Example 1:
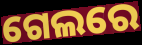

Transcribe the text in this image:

ଗେଲରେ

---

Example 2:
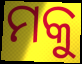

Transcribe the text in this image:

ମକୁ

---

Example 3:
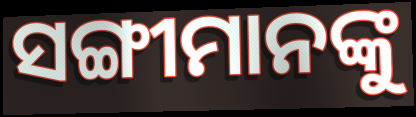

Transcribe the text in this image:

ସଙ୍ଗୀମାନଙ୍କୁ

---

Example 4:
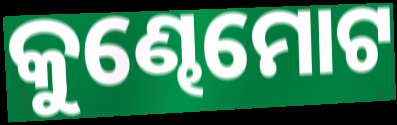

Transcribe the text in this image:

କୁଣ୍ଢେମୋଟ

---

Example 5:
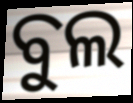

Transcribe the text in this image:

ବୁଲ